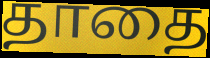
தாதை